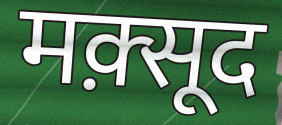
मक़्सूद